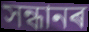
সন্ধানৰ